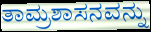
ತಾಮ್ರಶಾಸನವನ್ನು